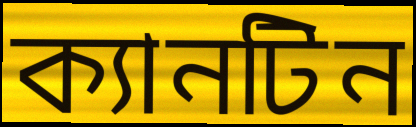
ক্যানটিন